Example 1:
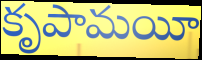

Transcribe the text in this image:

కృపామయీ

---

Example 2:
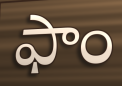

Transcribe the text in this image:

ఫాం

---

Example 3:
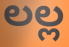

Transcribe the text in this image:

లల్ల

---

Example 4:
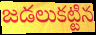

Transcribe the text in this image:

జడలుకట్టిన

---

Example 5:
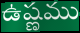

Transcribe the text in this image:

ఉష్ణము